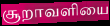
சூறாவளியை